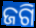
ଜଗି